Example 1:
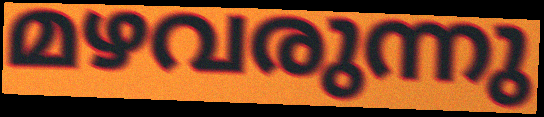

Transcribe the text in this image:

മഴവരുന്നു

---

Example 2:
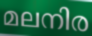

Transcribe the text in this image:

മലനിര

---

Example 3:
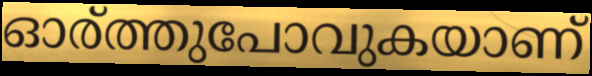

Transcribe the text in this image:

ഓര്ത്തുപോവുകയാണ്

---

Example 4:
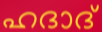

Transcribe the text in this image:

ഹദാദ്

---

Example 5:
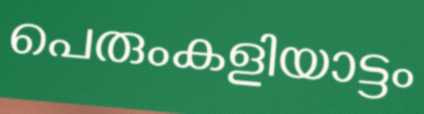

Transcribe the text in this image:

പെരുംകളിയാട്ടം